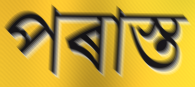
পৰাস্ত